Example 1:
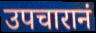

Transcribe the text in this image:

उपचारानं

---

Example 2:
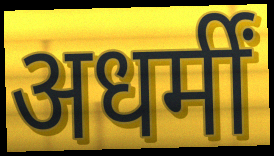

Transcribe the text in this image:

अधर्मीं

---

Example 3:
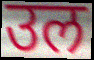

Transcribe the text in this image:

उल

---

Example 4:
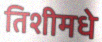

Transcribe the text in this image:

तिशीमधे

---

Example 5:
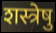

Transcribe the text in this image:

शस्त्रेषु